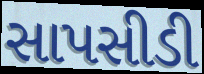
સાપસીડી